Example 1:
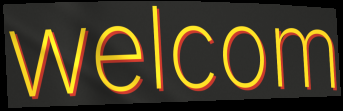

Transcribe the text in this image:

welcom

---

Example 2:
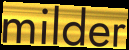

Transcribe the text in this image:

milder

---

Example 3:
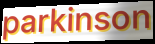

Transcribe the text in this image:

parkinson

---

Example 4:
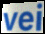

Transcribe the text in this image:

vei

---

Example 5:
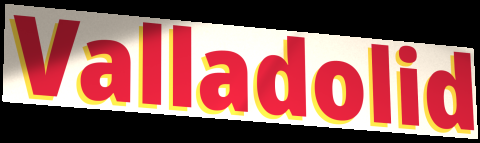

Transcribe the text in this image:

Valladolid